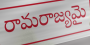
రామరాజ్యమై